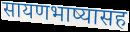
सायणभाष्यासह